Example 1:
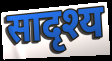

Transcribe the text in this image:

सादृश्य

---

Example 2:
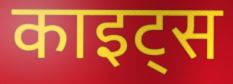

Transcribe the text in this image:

काइट्स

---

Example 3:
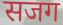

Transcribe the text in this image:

सजग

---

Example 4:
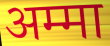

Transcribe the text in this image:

अम्मा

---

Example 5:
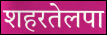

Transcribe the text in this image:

शहरतेलपा